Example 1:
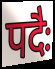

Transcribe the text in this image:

पदैः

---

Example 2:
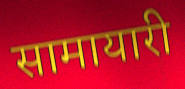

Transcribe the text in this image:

सामायारी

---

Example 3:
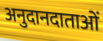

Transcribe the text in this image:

अनुदानदाताओं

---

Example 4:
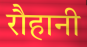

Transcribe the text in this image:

रौहानी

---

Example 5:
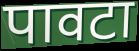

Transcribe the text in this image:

पावटा